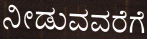
ನೀಡುವವರೆಗೆ